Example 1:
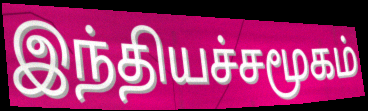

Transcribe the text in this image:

இந்தியச்சமூகம்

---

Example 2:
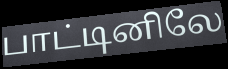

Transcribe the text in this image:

பாட்டினிலே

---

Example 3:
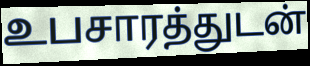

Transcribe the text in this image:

உபசாரத்துடன்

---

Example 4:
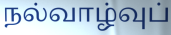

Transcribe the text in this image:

நல்வாழ்வுப்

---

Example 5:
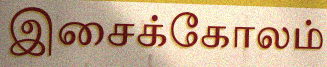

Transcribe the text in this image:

இசைக்கோலம்